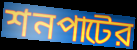
শনপাটের